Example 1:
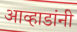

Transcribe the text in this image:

आव्हाडांनी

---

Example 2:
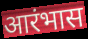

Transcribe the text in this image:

आरंभास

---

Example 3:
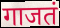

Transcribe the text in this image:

गाजतं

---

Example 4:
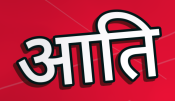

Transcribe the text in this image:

आति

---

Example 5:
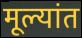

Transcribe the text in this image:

मूल्यांत